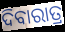
ଦିବାରାତ୍ର